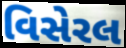
વિસેરલ